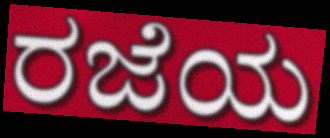
ರಜೆಯ